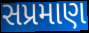
સપ્રમાણ